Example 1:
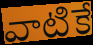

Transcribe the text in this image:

వాటికే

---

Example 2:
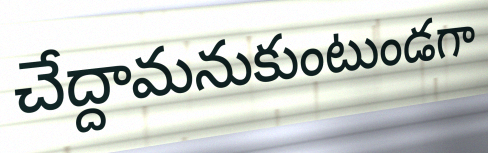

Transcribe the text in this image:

చేద్దామనుకుంటుండగా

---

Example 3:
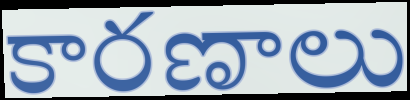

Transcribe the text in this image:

కారణాలు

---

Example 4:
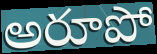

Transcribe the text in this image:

అరూపో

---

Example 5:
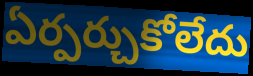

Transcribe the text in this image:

ఏర్పర్చుకోలేదు